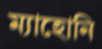
ম্যাহোনি